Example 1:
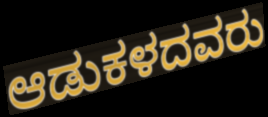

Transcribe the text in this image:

ಆಡುಕಳದವರು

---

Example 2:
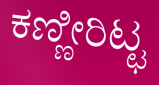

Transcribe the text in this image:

ಕಣ್ಣೀರಿಟ್ಟ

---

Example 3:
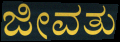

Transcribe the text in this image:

ಜೀವತು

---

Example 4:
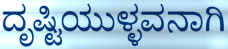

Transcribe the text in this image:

ದೃಷ್ಟಿಯುಳ್ಳವನಾಗಿ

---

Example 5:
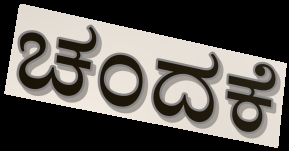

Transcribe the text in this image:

ಚಂದಕೆ